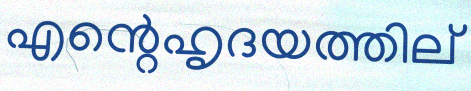
എന്റെഹൃദയത്തില്